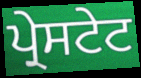
ਪ੍ਰੇਸਟੇਟ